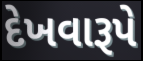
દેખવારૂપે